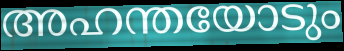
അഹന്തയോടും